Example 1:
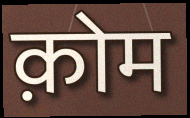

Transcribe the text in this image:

क़ोम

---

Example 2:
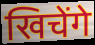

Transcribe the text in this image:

खिचेंगे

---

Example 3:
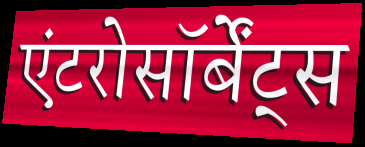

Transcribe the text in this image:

एंटरोसॉर्बेंट्स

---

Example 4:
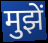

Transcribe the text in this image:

मुझें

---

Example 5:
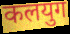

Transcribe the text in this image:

कलयुग